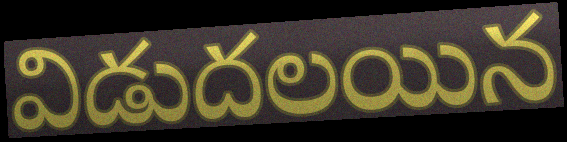
విడుదలయిన